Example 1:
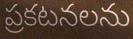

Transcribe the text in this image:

ప్రకటనలను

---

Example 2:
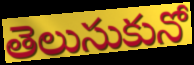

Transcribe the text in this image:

తెలుసుకునో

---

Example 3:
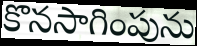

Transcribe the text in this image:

కొనసాగింపును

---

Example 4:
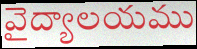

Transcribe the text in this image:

వైద్యాలయము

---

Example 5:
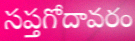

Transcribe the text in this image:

సప్తగోదావరం